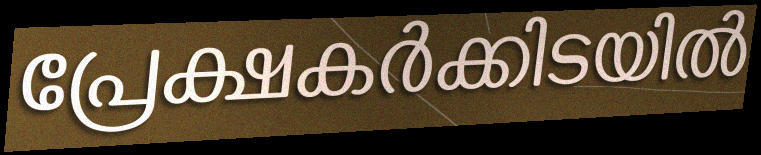
പ്രേക്ഷകർക്കിടയിൽ